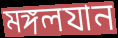
মঙ্গলযান